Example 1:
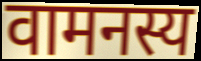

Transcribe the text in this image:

वामनस्य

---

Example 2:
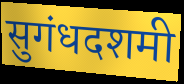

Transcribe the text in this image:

सुगंधदशमी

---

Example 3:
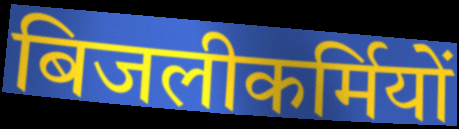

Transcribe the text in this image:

बिजलीकर्मियों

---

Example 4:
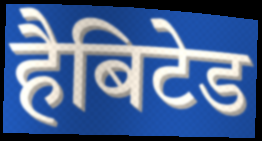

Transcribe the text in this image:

हैबिटेड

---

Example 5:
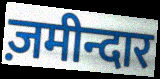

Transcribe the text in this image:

ज़मीन्दार